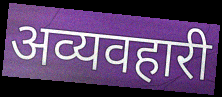
अव्यवहारी